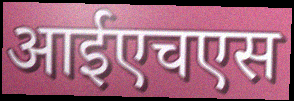
आईएचएस